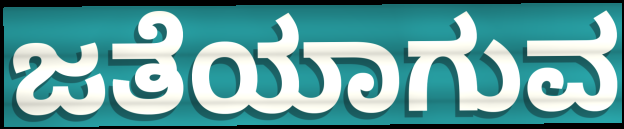
ಜತೆಯಾಗುವ